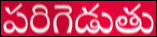
పరిగెడుతు